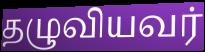
தழுவியவர்